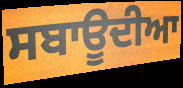
ਸਬਾਊਦੀਆ